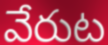
వేరుట